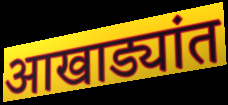
आखाड्यांत